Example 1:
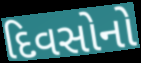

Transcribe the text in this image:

દિવસોનો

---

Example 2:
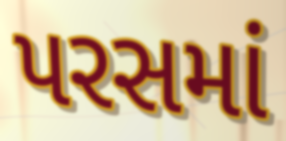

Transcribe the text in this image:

પરસમાં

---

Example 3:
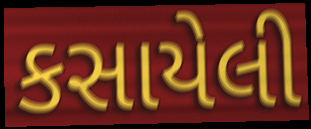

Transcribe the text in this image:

કસાયેલી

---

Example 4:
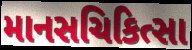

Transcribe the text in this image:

માનસચિકિત્સા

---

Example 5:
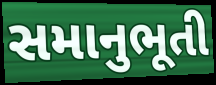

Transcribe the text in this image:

સમાનુભૂતી